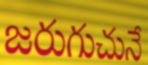
జరుగుచునే